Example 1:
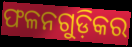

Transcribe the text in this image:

ଫଳନଗୁଡ଼ିକର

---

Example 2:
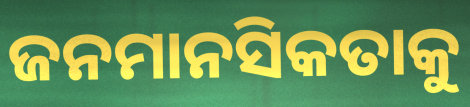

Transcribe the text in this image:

ଜନମାନସିକତାକୁ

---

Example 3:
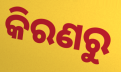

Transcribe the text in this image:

କିରଣରୁ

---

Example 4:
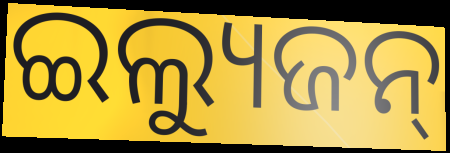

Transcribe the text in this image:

ଇଲ୍ୟୁଜନ୍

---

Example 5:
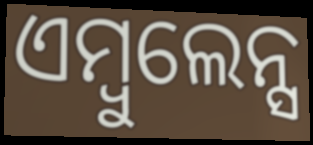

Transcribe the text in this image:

ଏମ୍ବୁଲେନ୍ସ